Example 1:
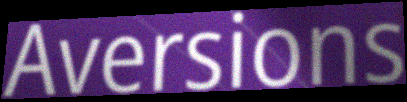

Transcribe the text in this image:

Aversions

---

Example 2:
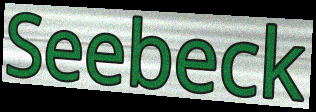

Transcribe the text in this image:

Seebeck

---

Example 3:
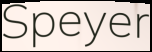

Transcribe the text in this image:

Speyer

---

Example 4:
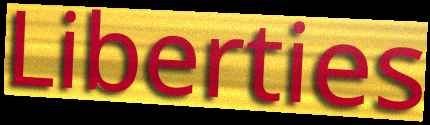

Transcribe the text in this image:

Liberties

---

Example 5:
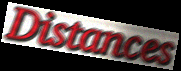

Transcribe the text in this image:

Distances